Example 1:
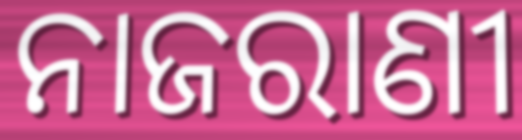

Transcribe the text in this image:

ନାଜରାଣୀ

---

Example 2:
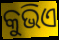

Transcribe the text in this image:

କୁଭିଏ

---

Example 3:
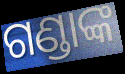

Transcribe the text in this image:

ଗଣ୍ଡାଙ୍କ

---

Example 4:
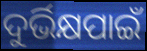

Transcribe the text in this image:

ଦୁର୍ଭିକ୍ଷପାଇଁ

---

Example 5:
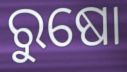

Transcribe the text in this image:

ରୁଷୋ